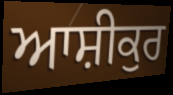
ਆਸ਼ੀਕੁਰ